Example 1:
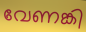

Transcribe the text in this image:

വേണങ്കി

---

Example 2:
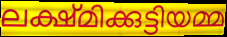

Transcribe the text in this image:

ലക്ഷ്മിക്കുട്ടിയമ്മ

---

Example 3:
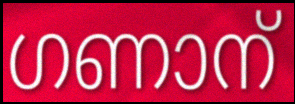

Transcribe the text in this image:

ഗണാന്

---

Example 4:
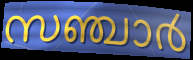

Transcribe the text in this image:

സഞ്ചാർ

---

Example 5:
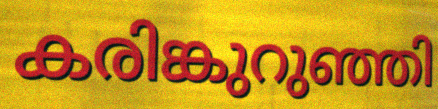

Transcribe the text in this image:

കരിങ്കുറുഞ്ഞി